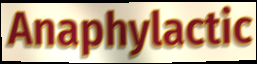
Anaphylactic